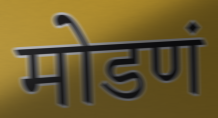
मोडणं